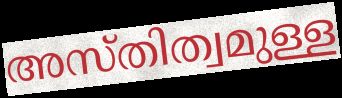
അസ്തിത്വമുള്ള